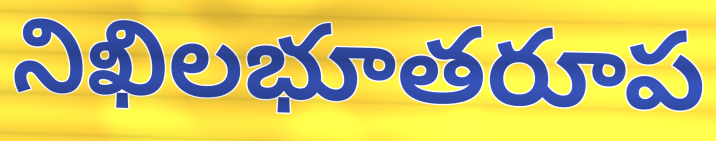
నిఖిలభూతరూప